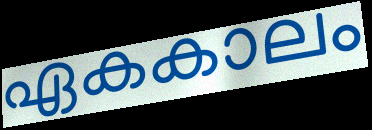
ഏകകാലം